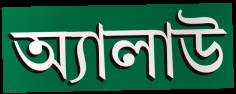
অ্যালাউ